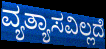
ವ್ಯತ್ಯಾಸವಿಲ್ಲದೆ